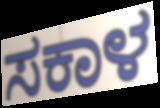
ಸಕಾಳ